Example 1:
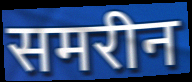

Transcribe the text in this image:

समरीन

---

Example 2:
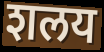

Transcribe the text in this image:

शलय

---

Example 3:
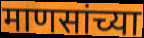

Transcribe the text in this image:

माणसांच्या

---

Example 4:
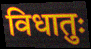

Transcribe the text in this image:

विधातुः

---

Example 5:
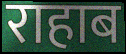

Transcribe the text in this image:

राहाब